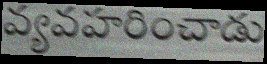
వ్యవహరించాడు